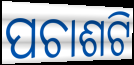
ପଚାଶଟି